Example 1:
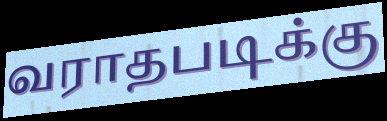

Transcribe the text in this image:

வராதபடிக்கு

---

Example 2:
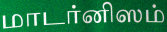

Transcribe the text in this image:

மாடர்னிஸம்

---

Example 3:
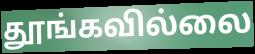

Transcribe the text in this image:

தூங்கவில்லை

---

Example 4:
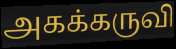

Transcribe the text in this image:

அகக்கருவி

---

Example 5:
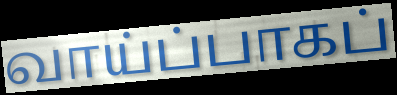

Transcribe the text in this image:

வாய்ப்பாகப்